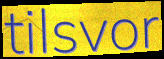
tilsvor